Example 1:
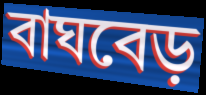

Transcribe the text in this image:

বাঘবেড়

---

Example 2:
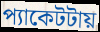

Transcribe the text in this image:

প্যাকেটটায়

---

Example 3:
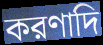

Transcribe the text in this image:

করণাদি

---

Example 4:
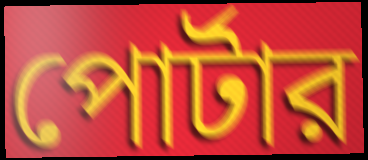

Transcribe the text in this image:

পোর্টার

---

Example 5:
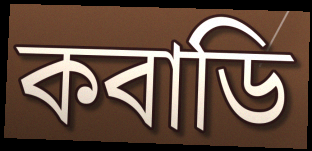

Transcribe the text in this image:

কবাডি